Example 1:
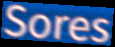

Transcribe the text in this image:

Sores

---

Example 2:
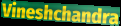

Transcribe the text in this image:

Vineshchandra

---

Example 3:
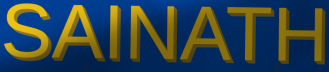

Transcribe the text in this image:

SAINATH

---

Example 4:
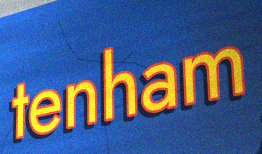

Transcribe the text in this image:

tenham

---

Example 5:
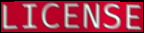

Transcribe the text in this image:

LICENSE